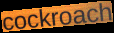
cockroach